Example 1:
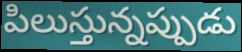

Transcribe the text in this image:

పిలుస్తున్నప్పుడు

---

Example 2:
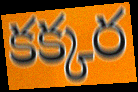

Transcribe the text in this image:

కక్కర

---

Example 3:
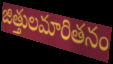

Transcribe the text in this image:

జిత్తులమారితనం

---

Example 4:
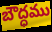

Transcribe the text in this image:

బౌద్ధము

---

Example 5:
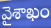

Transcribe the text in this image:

వైశాఖం